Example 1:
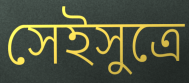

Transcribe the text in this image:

সেইসুত্রে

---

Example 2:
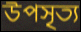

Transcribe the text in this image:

উপসৃত্য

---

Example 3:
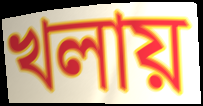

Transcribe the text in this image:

খলায়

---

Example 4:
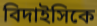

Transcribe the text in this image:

বিদাইসিকে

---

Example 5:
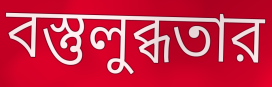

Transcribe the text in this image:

বস্তুলুব্ধতার